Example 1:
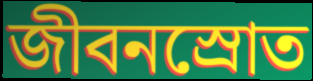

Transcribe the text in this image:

জীবনস্রোত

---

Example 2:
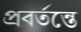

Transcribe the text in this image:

প্রবর্তন্তে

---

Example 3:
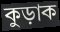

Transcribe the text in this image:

কুড়াক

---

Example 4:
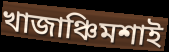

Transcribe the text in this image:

খাজাঞ্চিমশাই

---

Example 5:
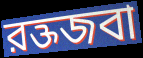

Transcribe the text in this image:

রক্তজবা